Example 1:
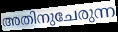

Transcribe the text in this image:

അതിനുചേരുന്ന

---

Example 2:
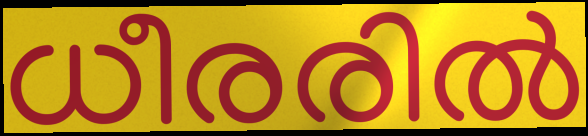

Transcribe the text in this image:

ധീരരിൽ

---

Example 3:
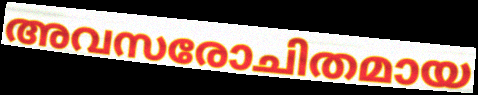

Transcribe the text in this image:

അവസരോചിതമായ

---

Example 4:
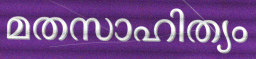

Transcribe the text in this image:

മതസാഹിത്യം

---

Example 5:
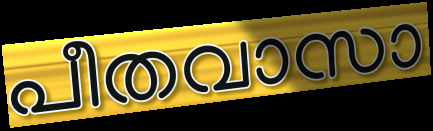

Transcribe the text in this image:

പീതവാസാ